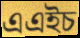
এএইচ